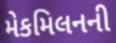
મેકમિલનની